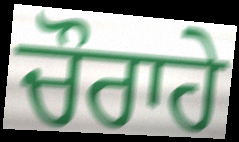
ਚੌਰਾਹੇ